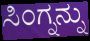
ಸಿಂಗ್ನನ್ನು